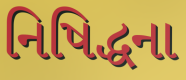
નિષિદ્ધના